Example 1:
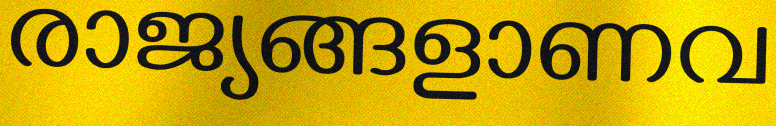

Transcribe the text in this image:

രാജ്യങ്ങളാണവ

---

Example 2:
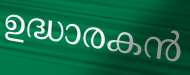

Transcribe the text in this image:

ഉദ്ധാരകൻ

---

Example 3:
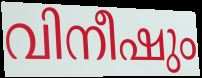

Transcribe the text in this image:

വിനീഷും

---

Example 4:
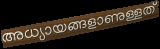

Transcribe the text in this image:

അധ്യായങ്ങളാണുള്ളത്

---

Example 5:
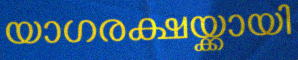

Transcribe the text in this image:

യാഗരക്ഷയ്ക്കായി